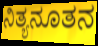
ನಿತ್ಯನೂತನ